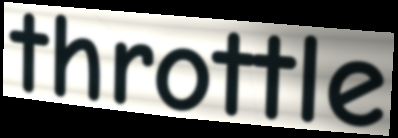
throttle